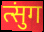
त्सुंग